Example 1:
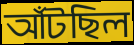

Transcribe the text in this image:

আঁটছিল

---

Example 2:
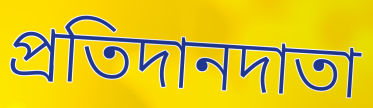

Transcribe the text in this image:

প্রতিদানদাতা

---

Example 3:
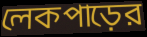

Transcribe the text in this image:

লেকপাড়ের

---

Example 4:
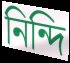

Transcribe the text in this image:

নিন্দি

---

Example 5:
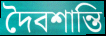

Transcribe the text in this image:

দৈবশান্তি